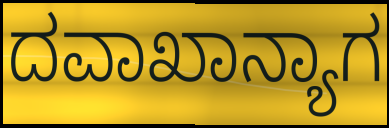
ದವಾಖಾನ್ಯಾಗ